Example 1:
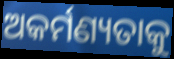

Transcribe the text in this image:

ଅକର୍ମଣ୍ୟତାକୁ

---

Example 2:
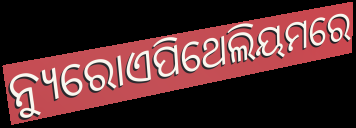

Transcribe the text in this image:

ନ୍ୟୁରୋଏପିଥେଲିୟମରେ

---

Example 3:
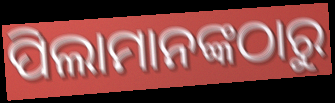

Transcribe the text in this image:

ପିଲାମାନଙ୍କଠାରୁ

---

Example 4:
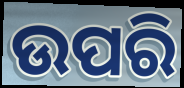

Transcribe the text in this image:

ଉପରି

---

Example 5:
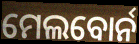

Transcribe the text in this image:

ମେଲବୋର୍ନ